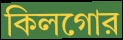
কিলগোর